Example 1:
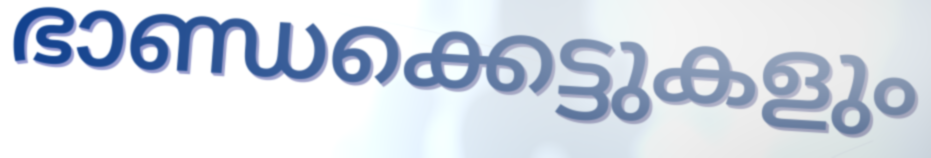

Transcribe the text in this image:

ഭാണ്ഡക്കെട്ടുകളും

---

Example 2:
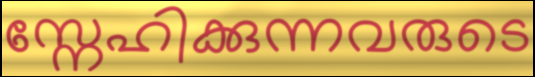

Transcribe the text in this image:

സ്നേഹിക്കുന്നവരുടെ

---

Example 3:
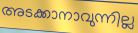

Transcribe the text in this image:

അടക്കാനാവുന്നില്ല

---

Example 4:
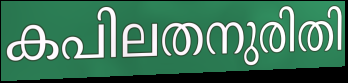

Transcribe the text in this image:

കപിലതനുരിതി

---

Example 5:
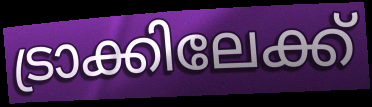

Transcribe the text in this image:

ട്രാക്കിലേക്ക്